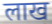
लाख